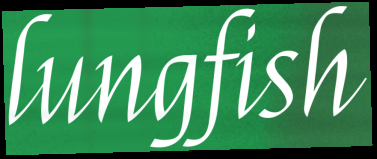
lungfish